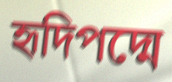
হৃদিপদ্মে